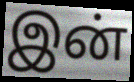
இன்